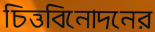
চিত্তবিনোদনের